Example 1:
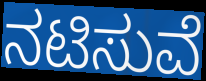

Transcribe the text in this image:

ನಟಿಸುವೆ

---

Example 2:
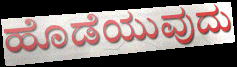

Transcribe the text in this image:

ಹೊಡೆಯುವುದು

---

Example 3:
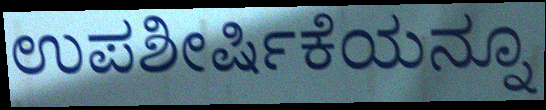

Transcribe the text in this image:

ಉಪಶೀರ್ಷಿಕೆಯನ್ನೂ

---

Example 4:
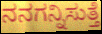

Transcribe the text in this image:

ನನಗನ್ನಿಸುತ್ತೆ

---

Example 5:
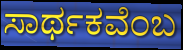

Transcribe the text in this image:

ಸಾರ್ಥಕವೆಂಬ